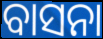
ବାସନା